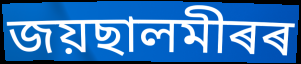
জয়ছালমীৰৰ